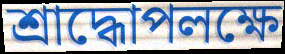
শ্রাদ্ধোপলক্ষে